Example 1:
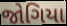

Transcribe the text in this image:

જોગિયા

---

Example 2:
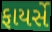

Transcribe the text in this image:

ફાયર્સે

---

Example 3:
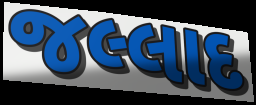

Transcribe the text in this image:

જલ્લાદ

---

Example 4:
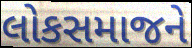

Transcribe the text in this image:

લોકસમાજને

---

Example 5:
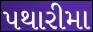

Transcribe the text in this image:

પથારીમા